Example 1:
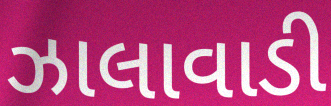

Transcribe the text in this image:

ઝાલાવાડી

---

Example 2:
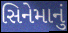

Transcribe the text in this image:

સિનેમાનું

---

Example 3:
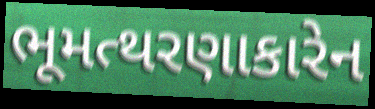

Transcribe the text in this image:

ભૂમત્થરણાકારેન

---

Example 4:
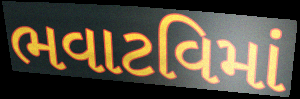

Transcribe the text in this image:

ભવાટવિમાં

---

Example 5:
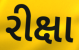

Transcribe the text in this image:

રીક્ષા